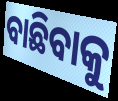
ବାଛିବାକୁ